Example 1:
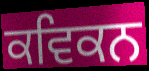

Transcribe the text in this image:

ਕਵਿਕਨ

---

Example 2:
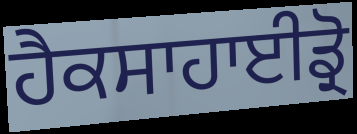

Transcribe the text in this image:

ਹੈਕਸਾਹਾਈਡ੍ਰੋ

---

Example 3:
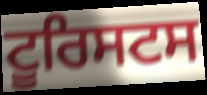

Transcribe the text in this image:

ਟੂਰਿਸਟਸ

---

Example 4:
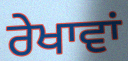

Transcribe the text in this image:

ਰੇਖਾਵਾਂ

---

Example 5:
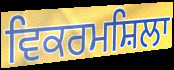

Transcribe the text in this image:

ਵਿਕਰਮਸ਼ਿਲਾ